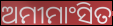
ଅମୀମାଂସିତ